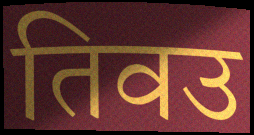
तिवउ